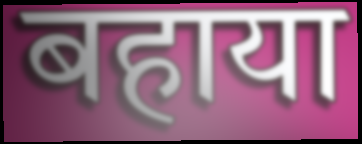
बहाया